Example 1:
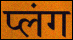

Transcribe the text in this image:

प्लंग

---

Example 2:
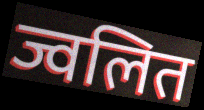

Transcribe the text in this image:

ज्वलित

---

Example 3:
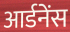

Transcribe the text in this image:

आर्डनेंस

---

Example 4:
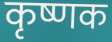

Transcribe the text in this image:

कृष्णक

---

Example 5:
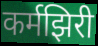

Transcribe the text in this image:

कर्मझिरी